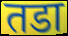
तडा